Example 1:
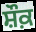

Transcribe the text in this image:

ਸ਼ੌਕ਼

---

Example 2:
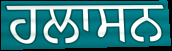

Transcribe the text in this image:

ਹਲਾਸਨ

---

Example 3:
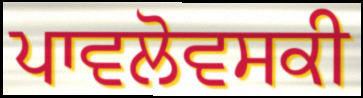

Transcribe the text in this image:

ਪਾਵਲੋਵਸਕੀ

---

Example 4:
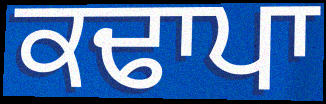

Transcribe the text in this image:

ਕਢਾਪਾ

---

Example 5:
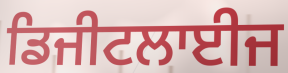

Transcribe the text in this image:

ਡਿਜੀਟਲਾਈਜ